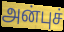
அன்புச்